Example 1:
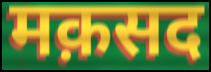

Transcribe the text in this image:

मक़सद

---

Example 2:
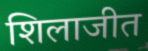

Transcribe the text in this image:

शिलाजीत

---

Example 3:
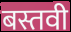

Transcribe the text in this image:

बस्तवी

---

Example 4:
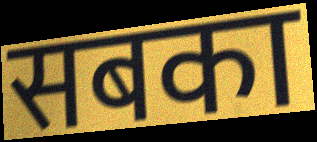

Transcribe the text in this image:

सबका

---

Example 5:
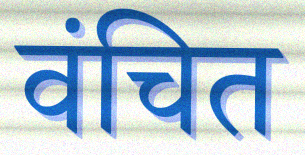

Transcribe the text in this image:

वंचित